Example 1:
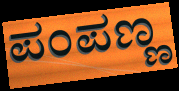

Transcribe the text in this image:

ಪಂಪಣ್ಣ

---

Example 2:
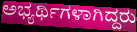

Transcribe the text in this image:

ಅಭ್ಯರ್ಥಿಗಳಾಗಿದ್ದರು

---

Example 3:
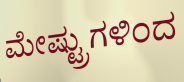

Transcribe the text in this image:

ಮೇಷ್ಟ್ರುಗಳಿಂದ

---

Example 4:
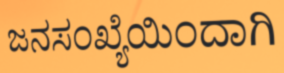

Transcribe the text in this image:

ಜನಸಂಖ್ಯೆಯಿಂದಾಗಿ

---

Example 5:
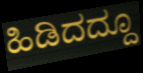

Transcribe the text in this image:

ಹಿಡಿದದ್ದೂ